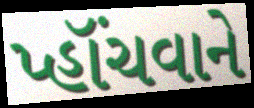
પ્હૉંચવાને